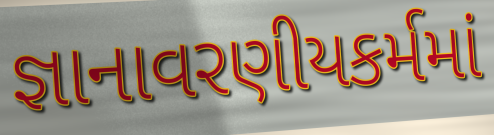
જ્ઞાનાવરણીયકર્મમાં